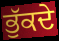
ਭੁੱਕਦੇ